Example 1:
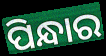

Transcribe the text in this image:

ପିନ୍ଧାର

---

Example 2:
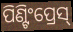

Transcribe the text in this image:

ପିଣ୍ଟିଂପ୍ରେସ୍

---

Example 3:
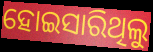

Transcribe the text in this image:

ହୋଇସାରିଥିଲୁ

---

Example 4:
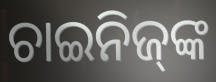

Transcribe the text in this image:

ଚାଇନିଜ୍‌ଙ୍କ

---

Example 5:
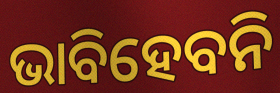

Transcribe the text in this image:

ଭାବିହେବନି